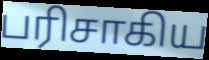
பரிசாகிய